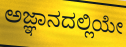
ಅಜ್ಞಾನದಲ್ಲಿಯೇ